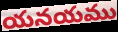
యనయము